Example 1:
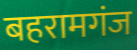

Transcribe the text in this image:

बहरामगंज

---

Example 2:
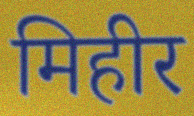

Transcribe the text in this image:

मिहीर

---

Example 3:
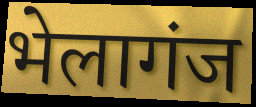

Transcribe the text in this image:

भेलागंज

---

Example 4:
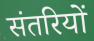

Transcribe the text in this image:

संतरियों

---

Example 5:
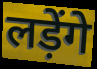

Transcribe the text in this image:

लड़ेंगे